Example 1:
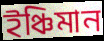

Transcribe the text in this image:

ইঞ্চিমান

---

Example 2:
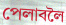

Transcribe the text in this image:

পেলাবলৈ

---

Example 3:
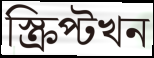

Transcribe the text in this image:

স্ক্ৰিপ্টখন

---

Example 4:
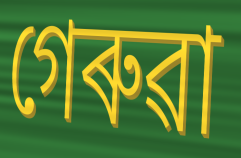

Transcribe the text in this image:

গেৰুৱা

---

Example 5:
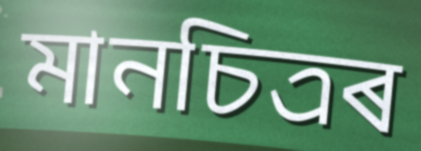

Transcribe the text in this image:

মানচিত্ৰৰ